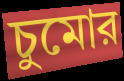
চুমোর